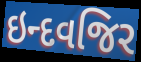
ઇન્દવજિર